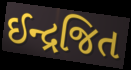
ઈન્દ્રજિત